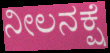
ನೀಲನಕ್ಷೆ